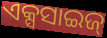
ଏକ୍ସସାଇଜ୍